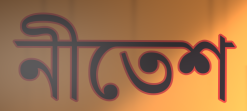
নীতেশ